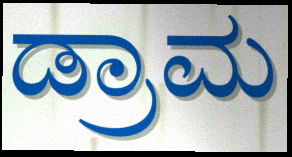
ಡ್ರಾಮ